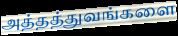
அத்தத்துவங்களை